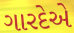
ગારદેએ